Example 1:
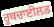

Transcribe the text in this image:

ਰੂਥਚਾਈਲਡ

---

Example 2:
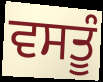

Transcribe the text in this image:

ਵਸਤੂੰ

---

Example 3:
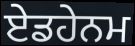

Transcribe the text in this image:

ਏਡਹੇਨਮ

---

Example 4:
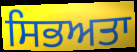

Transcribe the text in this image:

ਸਿਭਅਤਾ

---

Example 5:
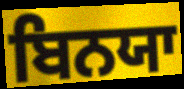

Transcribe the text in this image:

ਬਿਨਯਾ